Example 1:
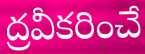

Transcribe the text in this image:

ద్రవీకరించే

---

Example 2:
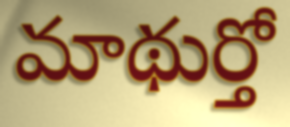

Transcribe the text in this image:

మాథుర్తో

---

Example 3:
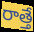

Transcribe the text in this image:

రాత్తే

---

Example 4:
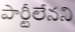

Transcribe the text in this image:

పార్టీలేనని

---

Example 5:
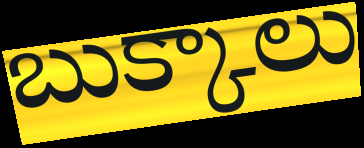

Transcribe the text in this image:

బుక్కాలు